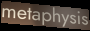
metaphysis